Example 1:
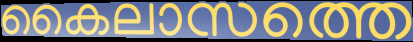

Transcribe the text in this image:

കൈലാസത്തെ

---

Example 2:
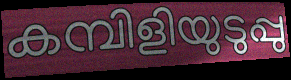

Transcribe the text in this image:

കമ്പിളിയുടുപ്പു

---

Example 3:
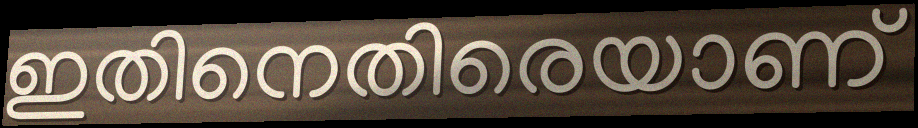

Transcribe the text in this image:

ഇതിനെതിരെയാണ്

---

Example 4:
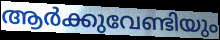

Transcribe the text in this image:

ആർക്കുവേണ്ടിയും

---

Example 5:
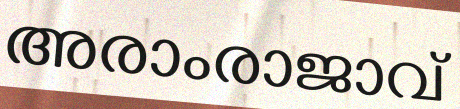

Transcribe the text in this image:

അരാംരാജാവ്